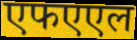
एफएएल